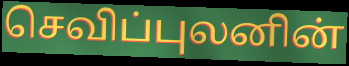
செவிப்புலனின்